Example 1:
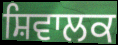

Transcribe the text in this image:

ਸ਼ਿਵਾਲਕ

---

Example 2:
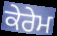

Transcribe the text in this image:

ਕੇਰੇਮ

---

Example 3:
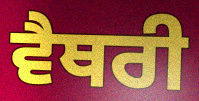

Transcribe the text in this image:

ਵੈਥਰੀ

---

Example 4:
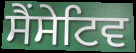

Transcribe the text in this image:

ਸੈਂਸੇਟਿਵ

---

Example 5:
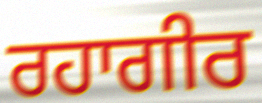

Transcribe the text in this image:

ਰਹਾਗੀਰ